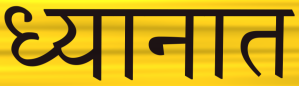
ध्यानात